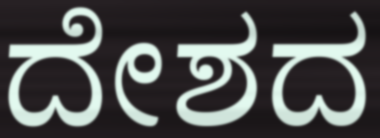
ದೇಶದ